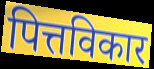
पित्तविकार